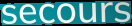
secours